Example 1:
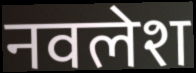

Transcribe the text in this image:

नवलेश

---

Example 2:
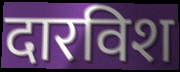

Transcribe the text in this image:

दारविश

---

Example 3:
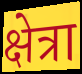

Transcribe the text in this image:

क्षेत्रा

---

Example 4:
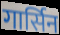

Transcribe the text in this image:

गार्सिन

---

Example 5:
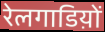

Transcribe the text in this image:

रेलगाडिय़ों